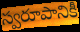
స్వరూపానికీ